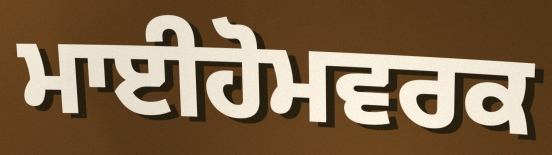
ਮਾਈਹੋਮਵਰਕ